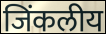
जिंकलीय